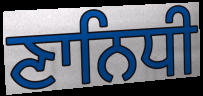
ਣਾਨਿਧੀ